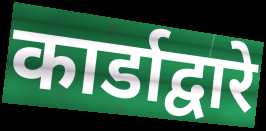
कार्डाद्वारे